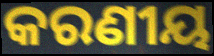
କରଣୀୟ